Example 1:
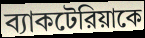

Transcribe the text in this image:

ব্যাকটেরিয়াকে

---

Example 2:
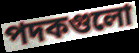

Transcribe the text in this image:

পদকগুলো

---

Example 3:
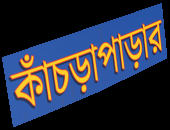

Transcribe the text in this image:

কাঁচড়াপাড়ার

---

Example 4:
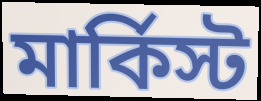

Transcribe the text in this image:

মার্কিস্ট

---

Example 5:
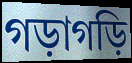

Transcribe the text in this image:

গড়াগড়ি